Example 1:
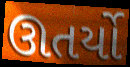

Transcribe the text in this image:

ઊતર્યો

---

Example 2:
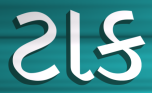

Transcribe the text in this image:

ટાક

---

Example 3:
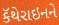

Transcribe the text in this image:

કૅથેરાઇનને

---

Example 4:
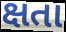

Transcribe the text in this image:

ક્ષતા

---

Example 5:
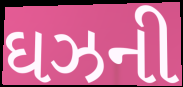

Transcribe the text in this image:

ઘઝની